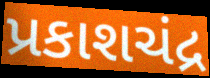
પ્રકાશચંદ્ર